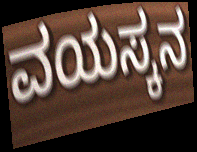
ವಯಸ್ಕನ